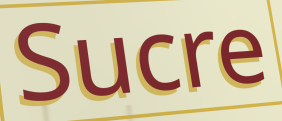
Sucre